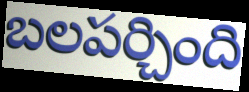
బలపర్చింది